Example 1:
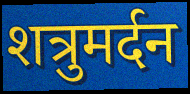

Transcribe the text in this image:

शत्रुमर्दन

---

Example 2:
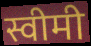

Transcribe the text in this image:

स्वीमी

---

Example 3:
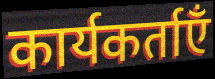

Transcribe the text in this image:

कार्यकर्ताएँ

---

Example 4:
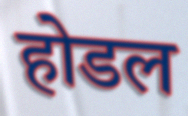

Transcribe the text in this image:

होडल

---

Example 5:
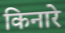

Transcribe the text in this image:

किनारे